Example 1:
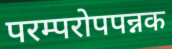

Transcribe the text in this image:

परम्परोपपन्नक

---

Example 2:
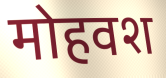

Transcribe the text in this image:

मोहवश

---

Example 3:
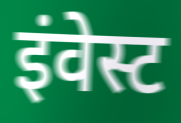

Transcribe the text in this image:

इंवेस्ट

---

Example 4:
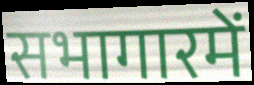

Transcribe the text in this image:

सभागारमें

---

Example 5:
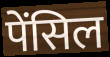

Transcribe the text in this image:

पेंसिल